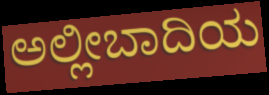
ಅಲ್ಲೀಬಾದಿಯ